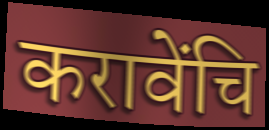
करावेंचि